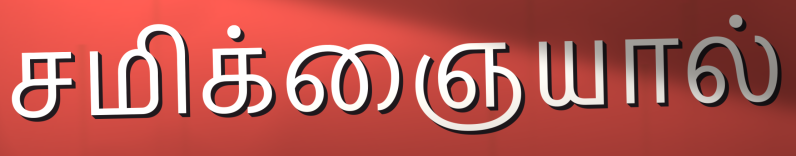
சமிக்ஞையால்